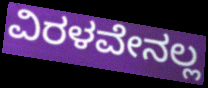
ವಿರಳವೇನಲ್ಲ